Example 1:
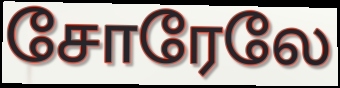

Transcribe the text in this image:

சோரேலே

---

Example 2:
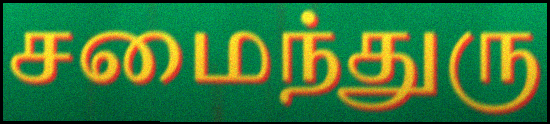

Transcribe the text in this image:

சமைந்துரு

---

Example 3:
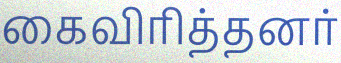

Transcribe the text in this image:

கைவிரித்தனர்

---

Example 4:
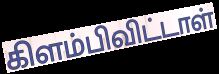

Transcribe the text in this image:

கிளம்பிவிட்டாள்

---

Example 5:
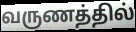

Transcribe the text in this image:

வருணத்தில்